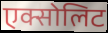
एक्सोलिट